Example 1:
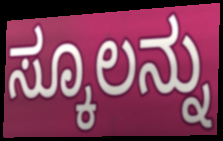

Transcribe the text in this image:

ಸ್ಕೂಲನ್ನು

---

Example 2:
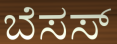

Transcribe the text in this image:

ಬೆಸಸ್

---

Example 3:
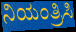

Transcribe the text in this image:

ನಿಯಂತ್ರಿಸಿ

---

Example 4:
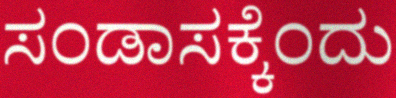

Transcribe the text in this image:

ಸಂಡಾಸಕ್ಕೆಂದು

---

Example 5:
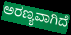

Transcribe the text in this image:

ಅರಣ್ಯವಾಗಿದೆ